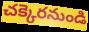
చక్కెరనుండి